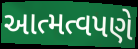
આત્મત્વપણે